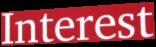
Interest